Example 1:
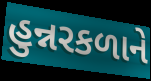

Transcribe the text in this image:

હુન્નરકળાને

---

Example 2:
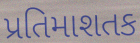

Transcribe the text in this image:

પ્રતિમાશતક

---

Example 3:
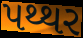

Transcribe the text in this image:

પથ્થર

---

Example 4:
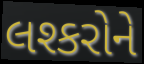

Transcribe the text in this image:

લશ્કરોને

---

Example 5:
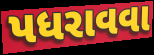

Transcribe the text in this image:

પધરાવવા